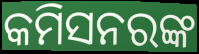
କମିସନରଙ୍କ